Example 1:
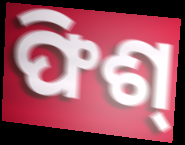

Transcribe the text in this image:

ଫିଶ୍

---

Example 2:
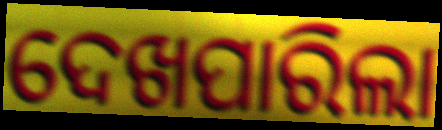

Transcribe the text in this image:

ଦେଖପାରିଲା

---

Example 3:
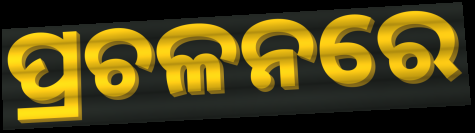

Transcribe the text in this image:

ପ୍ରଚଳନରେ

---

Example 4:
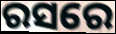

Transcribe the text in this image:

ରସରେ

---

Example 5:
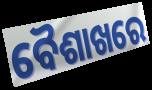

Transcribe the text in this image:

ବୈଶାଖରେ